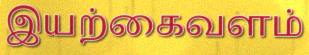
இயற்கைவளம்